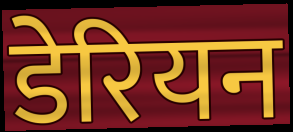
डेरियन